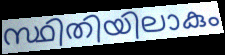
സ്ഥിതിയിലാകും